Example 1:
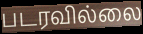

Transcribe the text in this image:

படரவில்லை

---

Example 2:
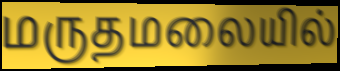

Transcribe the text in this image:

மருதமலையில்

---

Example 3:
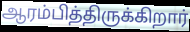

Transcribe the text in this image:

ஆரம்பித்திருக்கிறார்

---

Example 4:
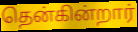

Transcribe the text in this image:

தென்கின்றார்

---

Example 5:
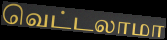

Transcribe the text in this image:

வெட்டலாமா